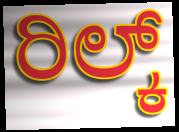
ರಿಲ್ಕ್